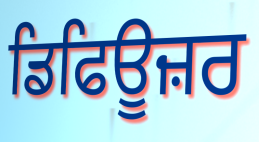
ਡਿਫਿਊਜ਼ਰ